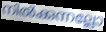
നിൽക്കുന്നല്ലോ